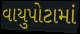
વાયુપોટામાં